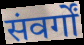
संवर्गों